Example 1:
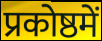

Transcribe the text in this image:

प्रकोष्ठमें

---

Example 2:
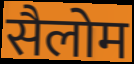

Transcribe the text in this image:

सैलोम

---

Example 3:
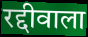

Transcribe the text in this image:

रद्दीवाला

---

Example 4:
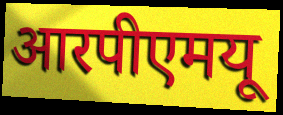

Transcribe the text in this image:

आरपीएमयू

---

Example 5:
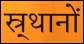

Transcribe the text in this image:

स्र्थानों